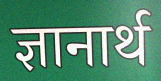
ज्ञानार्थ